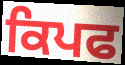
ਕਿਪਫ